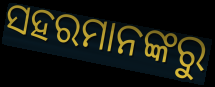
ସହରମାନଙ୍କରୁ